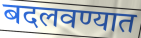
बदलवण्यात